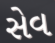
સેવ